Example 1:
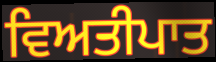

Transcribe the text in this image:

ਵਿਅਤੀਪਾਤ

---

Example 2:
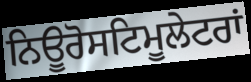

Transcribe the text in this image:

ਨਿਊਰੋਸਟਿਮੂਲੇਟਰਾਂ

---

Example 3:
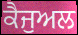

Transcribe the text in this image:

ਕੈਜੁਅਲ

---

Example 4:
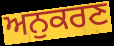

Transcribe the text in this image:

ਅਨੁਕਰਣ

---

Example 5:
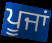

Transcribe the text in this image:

ਪੂਜਾਂ